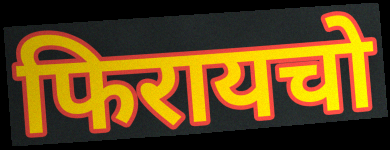
फिरायचो